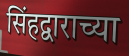
सिंहद्वाराच्या